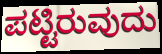
ಪಟ್ಟಿರುವುದು